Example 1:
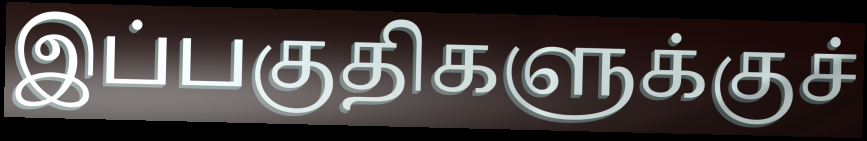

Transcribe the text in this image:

இப்பகுதிகளுக்குச்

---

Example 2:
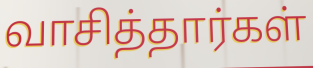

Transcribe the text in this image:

வாசித்தார்கள்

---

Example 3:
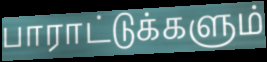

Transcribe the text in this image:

பாராட்டுக்களும்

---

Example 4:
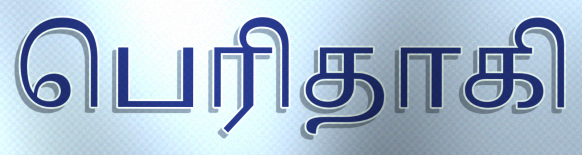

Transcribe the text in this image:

பெரிதாகி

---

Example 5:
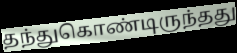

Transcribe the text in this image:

தந்துகொண்டிருந்தது